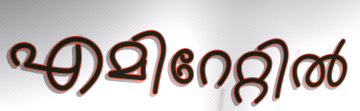
എമിറേറ്റിൽ